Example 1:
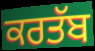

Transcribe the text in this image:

ਕਰਤੱਬ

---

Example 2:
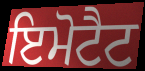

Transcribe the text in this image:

ਇਮੋਟੈਟ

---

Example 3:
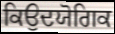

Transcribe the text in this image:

ਕਿਉਦਯੋਗਿਕ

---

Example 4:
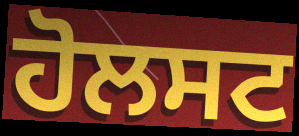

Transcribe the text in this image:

ਹੋਲਸਟ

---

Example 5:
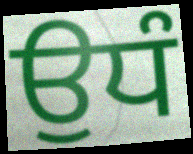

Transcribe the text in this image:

ਉਧੰ